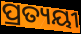
ପ୍ରତ୍ୟୟୀ